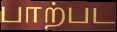
பாற்பட